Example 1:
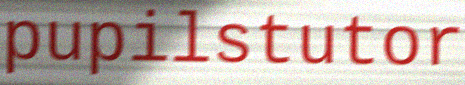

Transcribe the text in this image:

pupilstutor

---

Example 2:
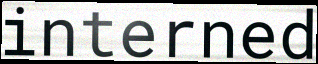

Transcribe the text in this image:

interned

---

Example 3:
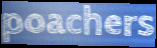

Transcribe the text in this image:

poachers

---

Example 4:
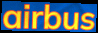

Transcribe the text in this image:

airbus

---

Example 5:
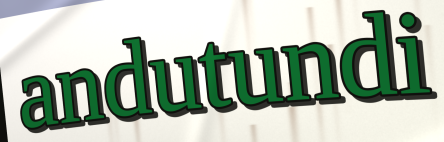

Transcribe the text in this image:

andutundi